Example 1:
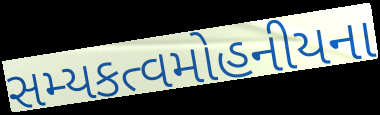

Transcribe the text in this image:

સમ્યકત્વમોહનીયના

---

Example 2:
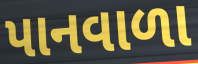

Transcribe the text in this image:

પાનવાળા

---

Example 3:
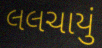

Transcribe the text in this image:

લલચાયું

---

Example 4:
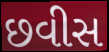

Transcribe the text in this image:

છવીસ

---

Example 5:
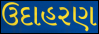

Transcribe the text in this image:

ઉદાહરણ